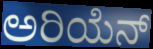
ಅರಿಯೆನ್